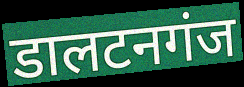
डालटनगंज